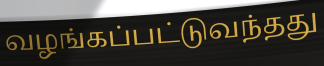
வழங்கப்பட்டுவந்தது